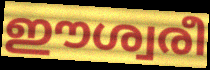
ഈശ്വരീ